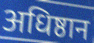
अधिष्ठान